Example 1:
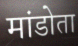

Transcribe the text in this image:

मांडोता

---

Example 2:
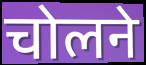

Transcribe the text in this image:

चोलने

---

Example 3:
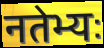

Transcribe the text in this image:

नतेभ्यः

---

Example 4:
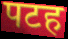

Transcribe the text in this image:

पटह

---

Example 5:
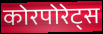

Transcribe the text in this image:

कोरपोरेट्स